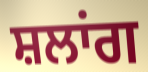
ਸ਼ਲਾਂਗ